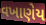
વખાણેય